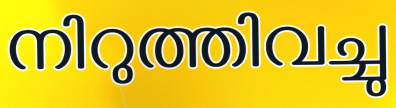
നിറുത്തിവച്ചു